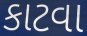
કાટવા